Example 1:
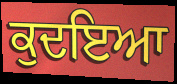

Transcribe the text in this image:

ਕੁਦਇਆ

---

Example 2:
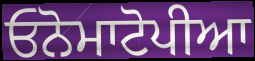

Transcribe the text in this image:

ਓਨੋਮਾਟੋਪੀਆ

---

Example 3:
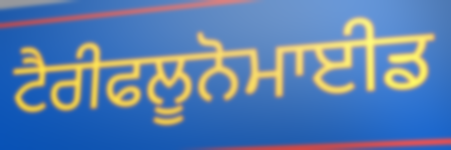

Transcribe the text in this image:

ਟੈਰੀਫਲੂਨੋਮਾਈਡ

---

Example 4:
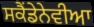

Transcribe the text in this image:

ਸਕੈਂਡੇਨੇਵੀਆ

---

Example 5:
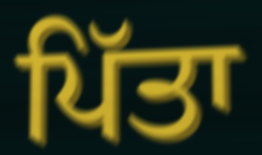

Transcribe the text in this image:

ਪਿੱਤਾ